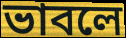
ভাবলে